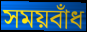
সময়বাঁধ